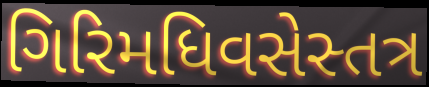
ગિરિમધિવસેસ્તત્ર